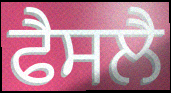
ਫੈਸਲੈ